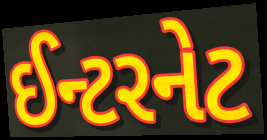
ઈન્ટરનેટ